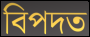
বিপদত